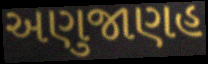
અણુજાણહ